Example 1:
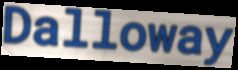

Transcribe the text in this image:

Dalloway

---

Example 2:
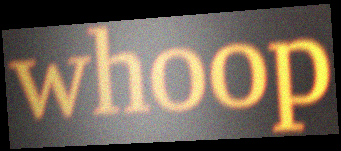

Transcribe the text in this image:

whoop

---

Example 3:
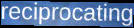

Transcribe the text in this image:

reciprocating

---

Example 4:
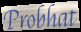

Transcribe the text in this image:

Probhat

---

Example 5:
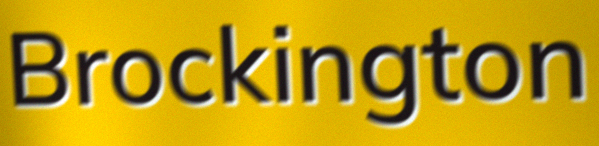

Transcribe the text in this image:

Brockington